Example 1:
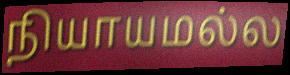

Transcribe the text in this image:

நியாயமல்ல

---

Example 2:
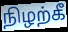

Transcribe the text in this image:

நிழற்கீ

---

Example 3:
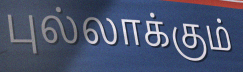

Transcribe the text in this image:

புல்லாக்கும்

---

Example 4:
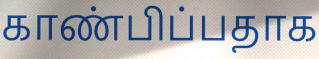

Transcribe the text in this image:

காண்பிப்பதாக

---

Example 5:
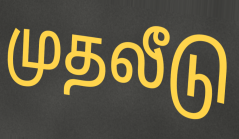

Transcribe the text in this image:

முதலீடு